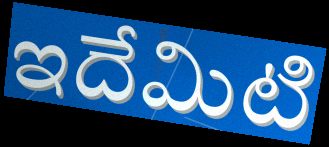
ఇదేమిటి